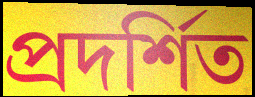
প্রদর্শিত